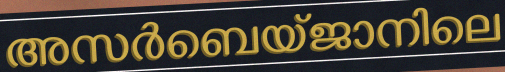
അസർബെയ്ജാനിലെ